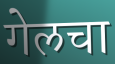
गेलचा